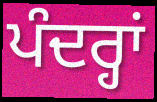
ਪੰਦਰ੍ਹਾਂ